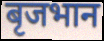
बृजभान